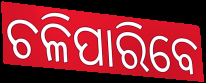
ଚଳିପାରିବେ